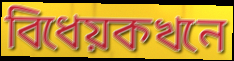
বিধেয়কখনে